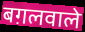
बग़लवाले